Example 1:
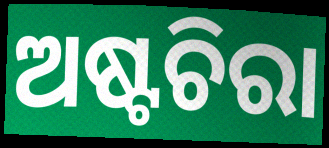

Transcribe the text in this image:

ଅଷ୍ଟଚିରା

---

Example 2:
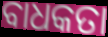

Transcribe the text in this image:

ବାଧକତା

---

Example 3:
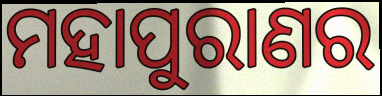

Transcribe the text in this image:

ମହାପୁରାଣର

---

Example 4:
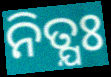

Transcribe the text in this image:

ନିତ୍ଯଃ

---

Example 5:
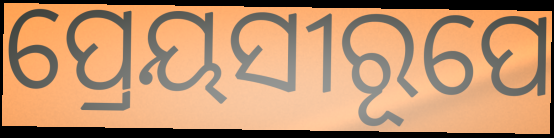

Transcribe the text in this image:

ପ୍ରେୟସୀରୂପେ